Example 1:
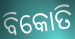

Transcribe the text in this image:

ବିକୋତି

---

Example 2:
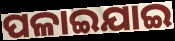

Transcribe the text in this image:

ପଳାଇଯାଇ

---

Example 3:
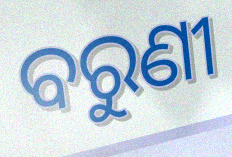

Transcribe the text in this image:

ବରୁଣୀ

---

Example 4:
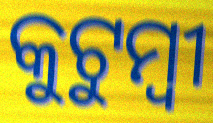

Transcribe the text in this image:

କୁଟୁମ୍ୱୀ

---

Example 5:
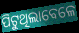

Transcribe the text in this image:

ପିଟୁଥିଲାବେଳେ